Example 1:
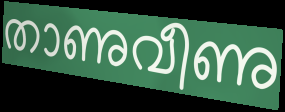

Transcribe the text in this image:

താണുവീണു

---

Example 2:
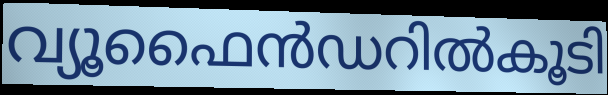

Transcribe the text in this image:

വ്യൂഫൈൻഡറിൽകൂടി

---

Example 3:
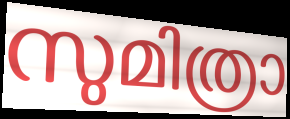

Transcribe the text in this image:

സുമിത്രാ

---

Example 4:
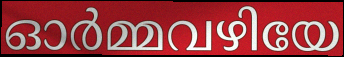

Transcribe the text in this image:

ഓർമ്മവഴിയേ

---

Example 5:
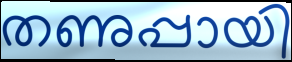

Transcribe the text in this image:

തണുപ്പായി